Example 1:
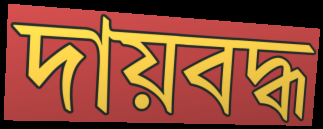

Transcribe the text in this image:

দায়বদ্ধ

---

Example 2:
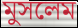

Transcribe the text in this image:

মুসলেম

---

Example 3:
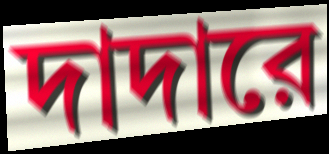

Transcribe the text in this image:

দাদারে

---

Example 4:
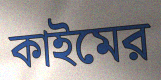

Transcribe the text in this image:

কাইমের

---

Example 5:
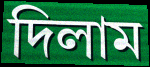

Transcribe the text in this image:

দিলাম